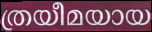
ത്രയീമയായ